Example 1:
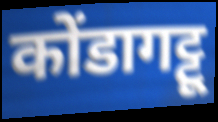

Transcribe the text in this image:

कोंडागट्टू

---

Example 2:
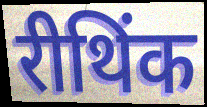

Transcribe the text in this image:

रीथिंक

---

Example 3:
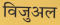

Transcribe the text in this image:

विजुअल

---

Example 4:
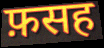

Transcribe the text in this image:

फ़सह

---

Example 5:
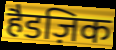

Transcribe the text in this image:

हैडज़िक